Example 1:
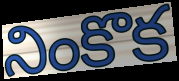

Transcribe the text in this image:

నింకొక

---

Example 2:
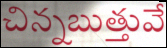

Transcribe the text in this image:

చిన్నబుత్తువే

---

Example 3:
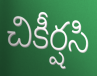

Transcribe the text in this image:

చికీర్షసి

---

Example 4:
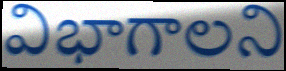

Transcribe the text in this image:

విభాగాలని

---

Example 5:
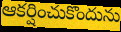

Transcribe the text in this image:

ఆకర్షించుకొందును